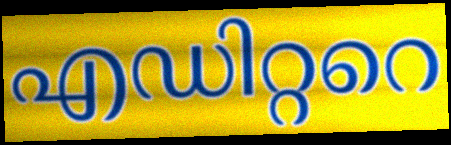
എഡിറ്ററെ